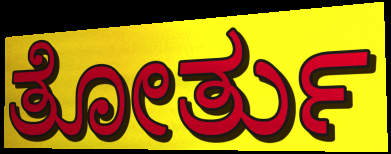
ತೋರ್ತು